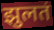
झुलतं